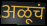
अळूचं